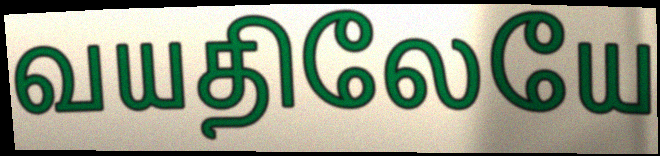
வயதிலேயே